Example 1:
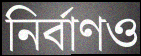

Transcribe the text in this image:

নির্বাণও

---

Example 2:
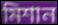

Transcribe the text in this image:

মিশান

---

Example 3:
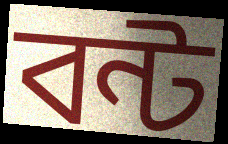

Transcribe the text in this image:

বন্ট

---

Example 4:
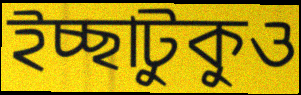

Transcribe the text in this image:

ইচ্ছাটুকুও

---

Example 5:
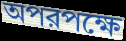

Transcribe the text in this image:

অপরপক্ষে